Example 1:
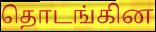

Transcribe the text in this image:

தொடங்கின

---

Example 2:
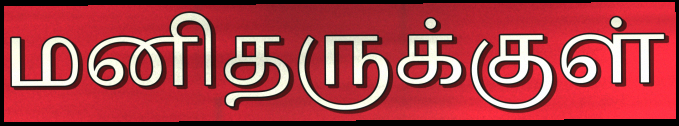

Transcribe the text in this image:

மனிதருக்குள்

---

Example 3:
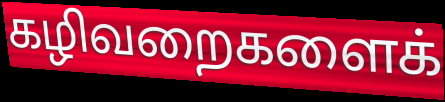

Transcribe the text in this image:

கழிவறைகளைக்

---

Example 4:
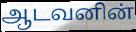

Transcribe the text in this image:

ஆடவனின்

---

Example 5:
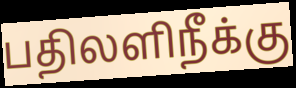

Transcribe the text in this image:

பதிலளிநீக்கு